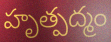
హృత్పద్మం